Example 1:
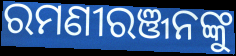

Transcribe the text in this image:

ରମଣୀରଞ୍ଜନଙ୍କୁ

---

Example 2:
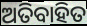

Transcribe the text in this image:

ଅତିବାହିତ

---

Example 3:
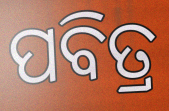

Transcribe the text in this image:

ପବିତ୍ର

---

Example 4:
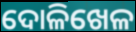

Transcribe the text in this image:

ଦୋଳିଖେଳ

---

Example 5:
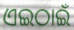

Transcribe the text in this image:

ଏଇଠାଇଁ